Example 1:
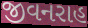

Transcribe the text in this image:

જીવનરાહ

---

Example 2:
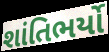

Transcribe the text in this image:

શાંતિભર્યો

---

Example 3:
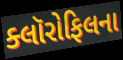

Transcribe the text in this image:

ક્લૉરોફિલના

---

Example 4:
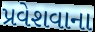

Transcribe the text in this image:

પ્રવેશવાના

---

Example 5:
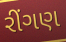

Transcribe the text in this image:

રીંગણ